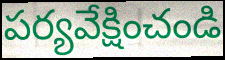
పర్యవేక్షించండి